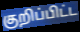
குறிப்பிட்ட